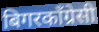
बिगरकाँग्रेसी